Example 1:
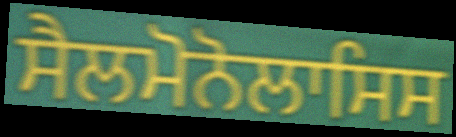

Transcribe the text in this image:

ਸੈਲਮੋਨੋਲਾਸਿਸ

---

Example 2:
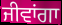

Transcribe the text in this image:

ਜੀਵਾਂਗਾ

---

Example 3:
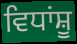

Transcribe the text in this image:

ਵਿਧਾਂਸ਼ੂ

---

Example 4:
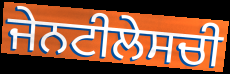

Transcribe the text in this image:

ਜੇਨਟੀਲੇਸਚੀ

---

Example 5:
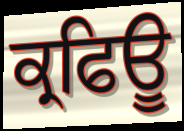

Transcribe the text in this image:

ਕ੍ਰਫਿਊ